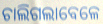
ଚାଲିଗଲାବେଳେ